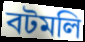
বটমলি